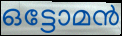
ഒട്ടോമൻ